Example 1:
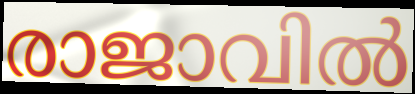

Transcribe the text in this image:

രാജാവിൽ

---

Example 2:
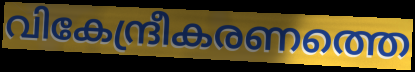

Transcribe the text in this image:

വികേന്ദ്രീകരണത്തെ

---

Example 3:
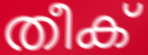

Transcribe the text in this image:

തീക്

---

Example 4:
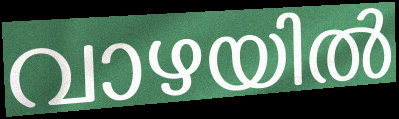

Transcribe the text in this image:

വാഴയിൽ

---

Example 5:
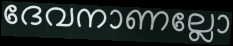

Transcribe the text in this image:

ദേവനാണല്ലോ